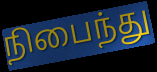
நிபைந்து